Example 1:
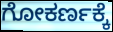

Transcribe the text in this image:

ಗೋಕರ್ಣಕ್ಕೆ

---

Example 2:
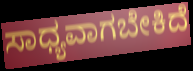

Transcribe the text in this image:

ಸಾಧ್ಯವಾಗಬೇಕಿದೆ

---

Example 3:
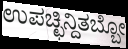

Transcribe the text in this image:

ಉಪಚ್ಛಿನ್ದಿತಬ್ಬೋ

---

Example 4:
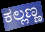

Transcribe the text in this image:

ಕಲ್ಲಣ್ಣ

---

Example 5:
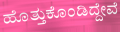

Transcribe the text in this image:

ಹೊತ್ತುಕೊಂಡಿದ್ದೇವೆ